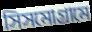
সিসমোগ্রামে